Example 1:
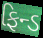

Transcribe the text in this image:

ફિન્ડ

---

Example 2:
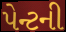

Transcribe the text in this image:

પેન્ટની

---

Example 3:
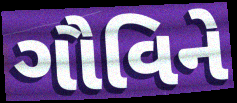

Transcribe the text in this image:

ગૌવિને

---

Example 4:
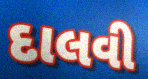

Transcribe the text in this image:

દાલવી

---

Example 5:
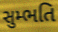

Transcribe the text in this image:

સુમ્ભતિ